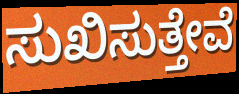
ಸುಖಿಸುತ್ತೇವೆ